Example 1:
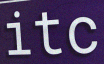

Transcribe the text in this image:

itc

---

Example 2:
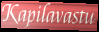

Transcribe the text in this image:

Kapilavastu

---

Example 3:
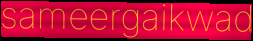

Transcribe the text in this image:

sameergaikwad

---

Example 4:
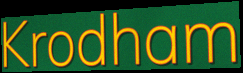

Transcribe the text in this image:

Krodham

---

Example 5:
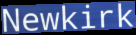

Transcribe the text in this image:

Newkirk